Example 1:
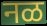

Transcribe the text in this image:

नळ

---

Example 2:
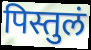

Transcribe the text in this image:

पिस्तुलं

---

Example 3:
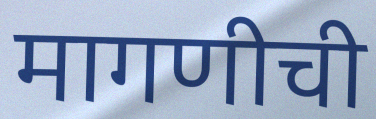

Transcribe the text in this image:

मागणीची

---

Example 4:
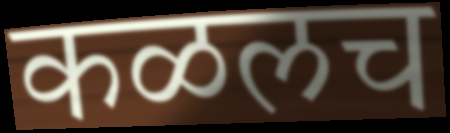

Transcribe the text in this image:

कळलच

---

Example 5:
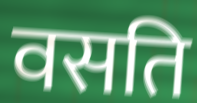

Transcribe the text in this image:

वसति